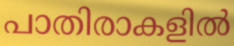
പാതിരാകളിൽ